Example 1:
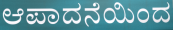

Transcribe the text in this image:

ಆಪಾದನೆಯಿಂದ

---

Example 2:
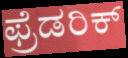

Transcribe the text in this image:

ಫ್ರೆಡರಿಕ್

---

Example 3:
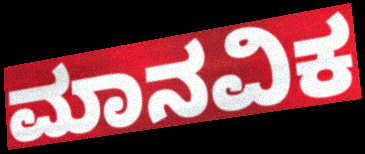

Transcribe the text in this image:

ಮಾನವಿಕ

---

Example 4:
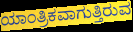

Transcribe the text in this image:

ಯಾಂತ್ರಿಕವಾಗುತ್ತಿರುವ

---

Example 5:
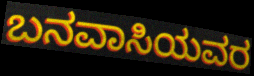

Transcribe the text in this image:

ಬನವಾಸಿಯವರ